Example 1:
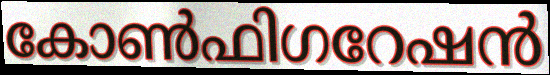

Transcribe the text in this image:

കോൺഫിഗറേഷൻ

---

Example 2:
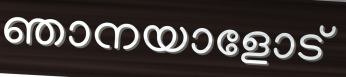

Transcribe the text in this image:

ഞാനയാളോട്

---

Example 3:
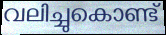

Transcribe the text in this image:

വലിച്ചുകൊണ്ട്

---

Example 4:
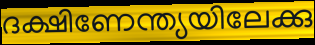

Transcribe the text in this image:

ദക്ഷിണേന്ത്യയിലേക്കു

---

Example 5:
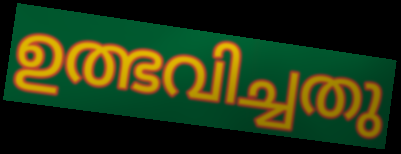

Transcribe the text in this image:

ഉത്ഭവിച്ചതു